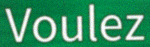
Voulez